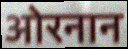
ओरनान